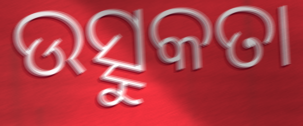
ଉତ୍ସୁକତା